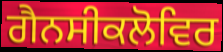
ਗੈਨਸੀਕਲੋਵਿਰ